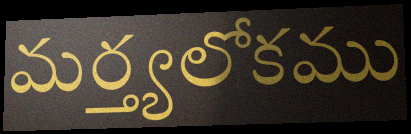
మర్త్యలోకము